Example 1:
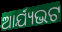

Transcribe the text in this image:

ଆର୍ଯ୍ୟଭଟ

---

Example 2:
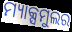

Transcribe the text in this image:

ମ୍ୟାକ୍ସମୁଲର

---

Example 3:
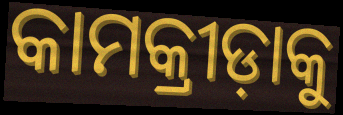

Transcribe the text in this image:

କାମକ୍ରୀଡ଼ାକୁ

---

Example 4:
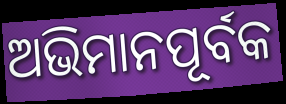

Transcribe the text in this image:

ଅଭିମାନପୂର୍ବକ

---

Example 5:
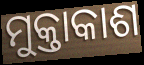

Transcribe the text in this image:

ମୁକ୍ତାକାଶ